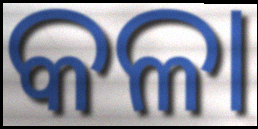
କଳା